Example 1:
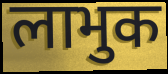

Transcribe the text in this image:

लाभुक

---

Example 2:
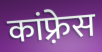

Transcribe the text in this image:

कांफ़्रेस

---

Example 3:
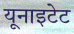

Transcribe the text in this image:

यूनाइटेट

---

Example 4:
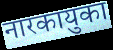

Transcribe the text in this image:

नारकायुका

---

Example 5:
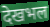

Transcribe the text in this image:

देखभल